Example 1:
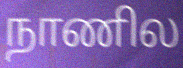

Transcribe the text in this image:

நாணில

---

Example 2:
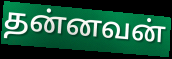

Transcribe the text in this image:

தன்னவன்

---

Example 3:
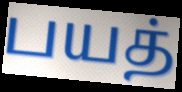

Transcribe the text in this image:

பயத்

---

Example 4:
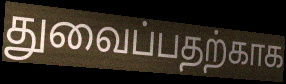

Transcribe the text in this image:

துவைப்பதற்காக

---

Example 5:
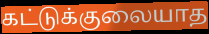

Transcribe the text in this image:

கட்டுக்குலையாத